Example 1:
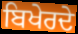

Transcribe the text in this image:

ਬਿਖੇਰਦੇ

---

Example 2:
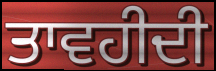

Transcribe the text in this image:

ਤਾਵਹੀਦੀ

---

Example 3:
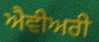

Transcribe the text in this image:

ਐਵੀਅਰੀ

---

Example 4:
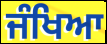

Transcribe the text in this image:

ਜੰਖਿਆ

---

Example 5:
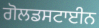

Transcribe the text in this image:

ਗੋਲਡਸਟਾਈਨ